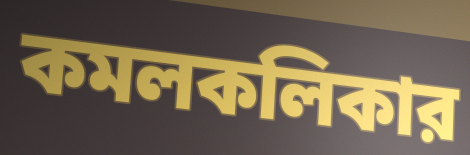
কমলকলিকার